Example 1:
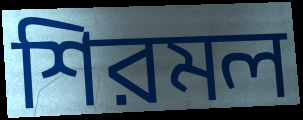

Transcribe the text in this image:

শিরমল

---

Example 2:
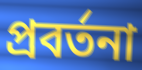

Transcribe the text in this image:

প্রবর্তনা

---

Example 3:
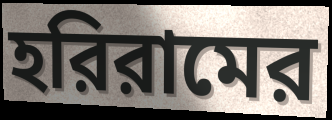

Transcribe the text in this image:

হরিরামের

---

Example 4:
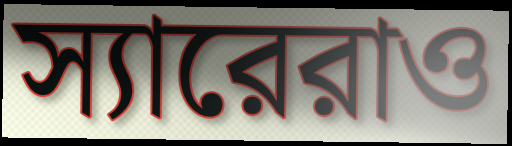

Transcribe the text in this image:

স্যারেরাও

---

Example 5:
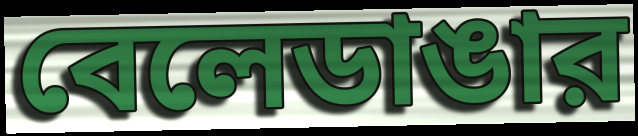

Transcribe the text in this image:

বেলেডাঙার